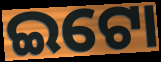
ଇଟୋ